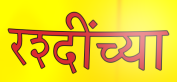
रश्दींच्या